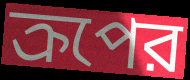
ক্রপের